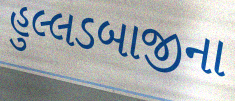
હુલ્લડબાજીના